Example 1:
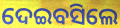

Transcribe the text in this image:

ଦେଇବସିଲେ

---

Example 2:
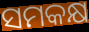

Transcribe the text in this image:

ସମକକ୍ଷ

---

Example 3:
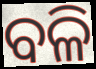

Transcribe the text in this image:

ବଳି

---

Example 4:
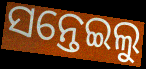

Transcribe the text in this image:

ସନ୍ତେଇଲୁ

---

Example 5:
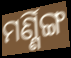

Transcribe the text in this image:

ମର୍ଣ୍ଣିଙ୍ଗ